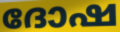
ദോഷ